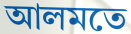
আলমতে